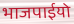
भाजपाईयो